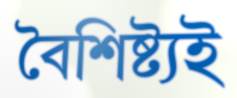
বৈশিষ্ট্যই